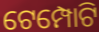
ଟେମ୍ପୋଟି